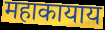
महाकायाय